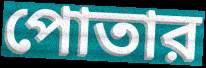
পোতার